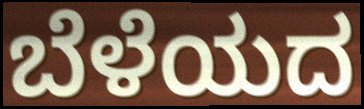
ಬೆಳೆಯದ